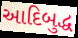
આદિબુદ્ધ